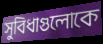
সুবিধাগুলোকে